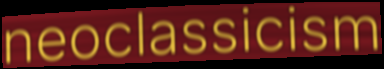
neoclassicism